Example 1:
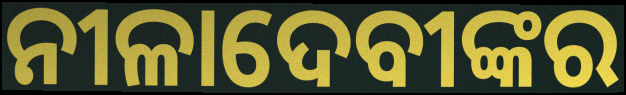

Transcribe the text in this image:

ନୀଳାଦେବୀଙ୍କର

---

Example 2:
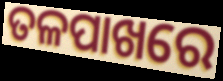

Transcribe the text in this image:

ତଳପାଖରେ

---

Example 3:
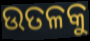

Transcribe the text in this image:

ଉତଳକୁ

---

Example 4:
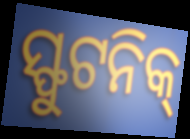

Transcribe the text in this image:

ସ୍ଫୁଟନିକ୍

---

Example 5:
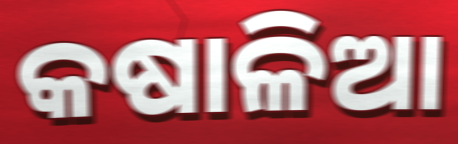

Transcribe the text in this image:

କଷାଳିଆ